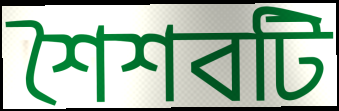
শৈশবটি